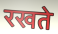
रखते